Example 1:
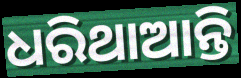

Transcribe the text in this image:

ଧରିଥାଆନ୍ତି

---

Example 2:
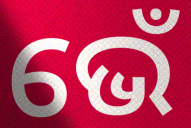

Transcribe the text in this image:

ଭେଁ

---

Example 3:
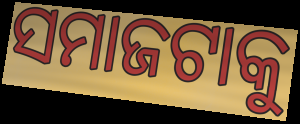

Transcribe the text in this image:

ସମାଜଟାକୁ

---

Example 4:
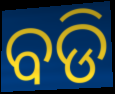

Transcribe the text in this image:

ବଡି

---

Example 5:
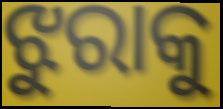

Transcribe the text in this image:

ଝୁରାକୁ